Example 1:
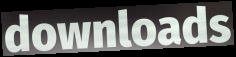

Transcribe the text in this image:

downloads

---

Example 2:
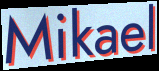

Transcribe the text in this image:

Mikael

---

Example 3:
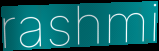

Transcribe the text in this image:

rashmi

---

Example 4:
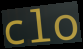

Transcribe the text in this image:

clo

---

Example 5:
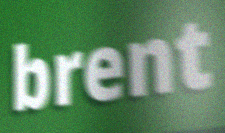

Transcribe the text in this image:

brent